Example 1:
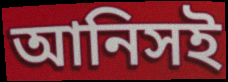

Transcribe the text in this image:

আনিসই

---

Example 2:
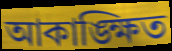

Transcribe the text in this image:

আকাঙ্ক্ষিত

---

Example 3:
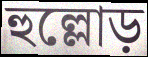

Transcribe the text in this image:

হুল্লোড়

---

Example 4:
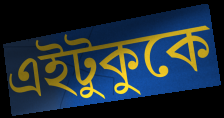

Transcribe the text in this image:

এইটুকুকে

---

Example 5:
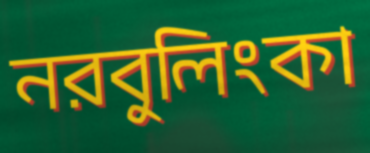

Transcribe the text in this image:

নরবুলিংকা